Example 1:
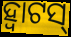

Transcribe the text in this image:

ହ୍ୱାଟସ୍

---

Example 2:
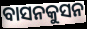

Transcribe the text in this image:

ବାସନକୁସନ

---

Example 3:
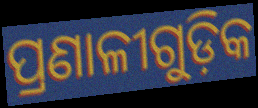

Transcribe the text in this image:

ପ୍ରଣାଳୀଗୁଡ଼ିକ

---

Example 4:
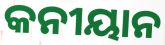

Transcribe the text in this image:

କନୀୟାନ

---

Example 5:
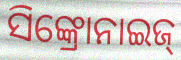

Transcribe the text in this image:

ସିଙ୍କ୍ରୋନାଇଜ୍